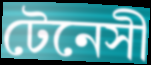
টেনেসী